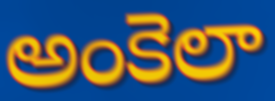
అంకెలా